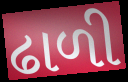
ઢાળી